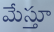
మేస్తూ